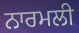
ਨਾਰਮਲੀ